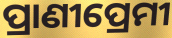
ପ୍ରାଣୀପ୍ରେମୀ